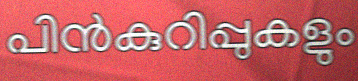
പിൻകുറിപ്പുകളും